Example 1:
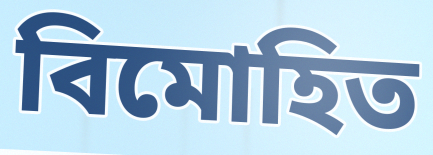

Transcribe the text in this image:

বিমোহিত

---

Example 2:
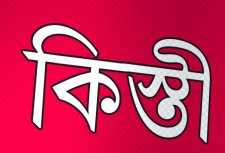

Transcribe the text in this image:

কিস্তী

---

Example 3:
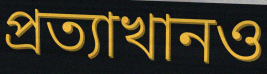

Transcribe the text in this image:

প্রত্যাখানও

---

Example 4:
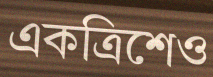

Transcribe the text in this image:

একত্রিশেও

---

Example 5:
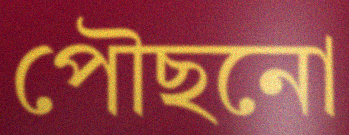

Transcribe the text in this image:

পৌছনো